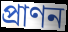
প্রাণন